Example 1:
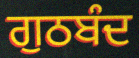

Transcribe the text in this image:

ਗੁਠਬੰਦ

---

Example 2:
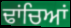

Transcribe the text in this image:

ਢਾਂਚਿਆਂ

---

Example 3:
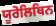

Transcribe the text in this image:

ਯੂਰੋਲਿਥਿਨ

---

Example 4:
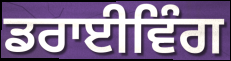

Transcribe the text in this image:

ਡਰਾਈਵਿੰਗ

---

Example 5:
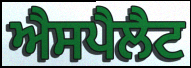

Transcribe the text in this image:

ਐਸਪੈਲੈਟ